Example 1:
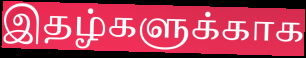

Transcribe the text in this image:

இதழ்களுக்காக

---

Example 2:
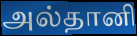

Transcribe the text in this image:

அல்தானி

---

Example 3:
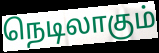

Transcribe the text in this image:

நெடிலாகும்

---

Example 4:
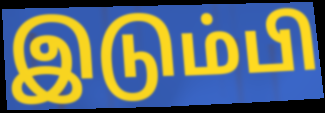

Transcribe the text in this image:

இடும்பி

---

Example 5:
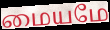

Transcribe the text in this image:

மையமே